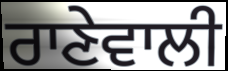
ਰਾਣੇਵਾਲੀ